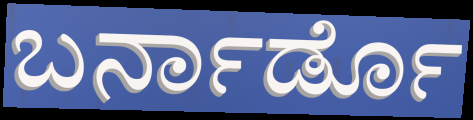
ಬರ್ನಾರ್ಡೊ